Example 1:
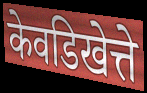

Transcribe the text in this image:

केवडिखेत्ते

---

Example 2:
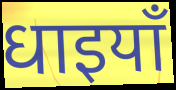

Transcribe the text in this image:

धाइयाँ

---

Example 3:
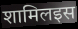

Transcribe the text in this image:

शामिलइस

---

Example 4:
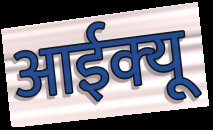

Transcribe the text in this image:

आईक्‍यू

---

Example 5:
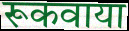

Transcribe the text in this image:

रूकवाया